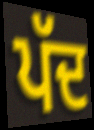
ਪੱਦ